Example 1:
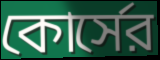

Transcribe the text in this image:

কোর্সের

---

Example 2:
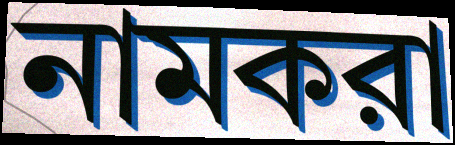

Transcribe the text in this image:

নামকরা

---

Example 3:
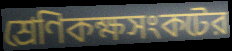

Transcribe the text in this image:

শ্রেণিকক্ষসংকটের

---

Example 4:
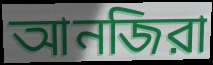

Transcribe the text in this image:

আনজিরা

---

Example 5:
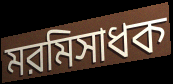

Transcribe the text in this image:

মরমিসাধক